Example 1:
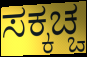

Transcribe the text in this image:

ಸಕ್ಕಚ್ಚ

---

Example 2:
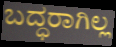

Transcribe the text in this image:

ಬದ್ಧರಾಗಿಲ್ಲ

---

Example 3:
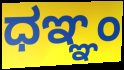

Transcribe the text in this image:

ಧಞ್ಞಂ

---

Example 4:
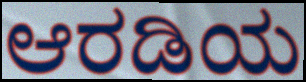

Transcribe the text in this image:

ಆರಡಿಯ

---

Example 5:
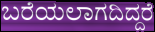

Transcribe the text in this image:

ಬರೆಯಲಾಗದಿದ್ದರೆ